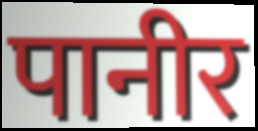
पानीर